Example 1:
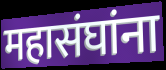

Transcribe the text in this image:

महासंघांना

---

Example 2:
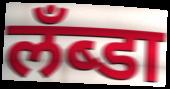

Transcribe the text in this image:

लँब्डा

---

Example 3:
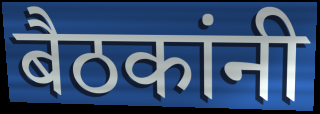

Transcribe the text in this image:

बैठकांनी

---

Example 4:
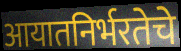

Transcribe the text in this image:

आयातनिर्भरतेचे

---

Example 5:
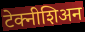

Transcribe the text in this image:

टेक्नीशिअन